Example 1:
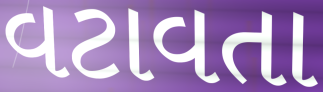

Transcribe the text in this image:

વટાવતા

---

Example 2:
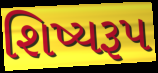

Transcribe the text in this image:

શિષ્યરૂપ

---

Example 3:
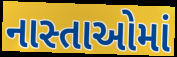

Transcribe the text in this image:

નાસ્તાઓમાં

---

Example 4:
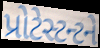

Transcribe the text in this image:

પ્રોટેસ્ટન્ટને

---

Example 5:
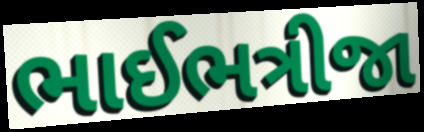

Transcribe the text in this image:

ભાઈભત્રીજા